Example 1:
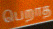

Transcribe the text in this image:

பெறாத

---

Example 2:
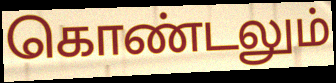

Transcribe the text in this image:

கொண்டலும்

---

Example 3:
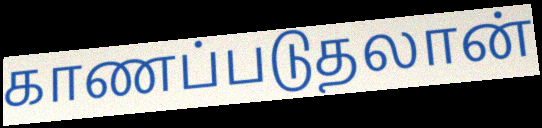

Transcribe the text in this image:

காணப்படுதலான்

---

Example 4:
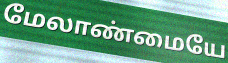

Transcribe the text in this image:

மேலாண்மையே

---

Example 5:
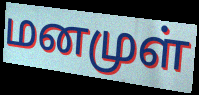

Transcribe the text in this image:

மனமுள்